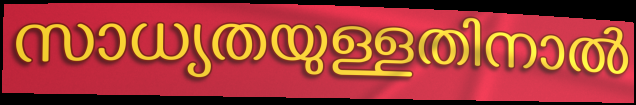
സാധ്യതയുള്ളതിനാൽ